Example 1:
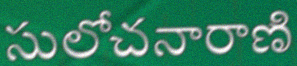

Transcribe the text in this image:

సులోచనారాణి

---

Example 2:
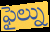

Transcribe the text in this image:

ఫైల్ను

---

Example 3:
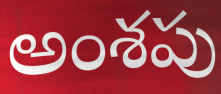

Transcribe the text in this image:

అంశపు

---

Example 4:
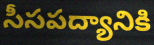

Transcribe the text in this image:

సీసపద్యానికి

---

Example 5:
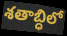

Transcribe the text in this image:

శతాబ్ధిలో